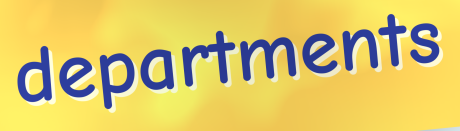
departments